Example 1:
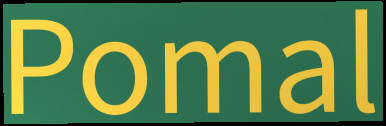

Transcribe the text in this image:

Pomal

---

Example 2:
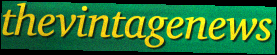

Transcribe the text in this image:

thevintagenews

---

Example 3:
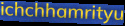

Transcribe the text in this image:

ichchhamrityu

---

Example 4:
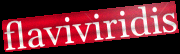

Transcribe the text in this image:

flaviviridis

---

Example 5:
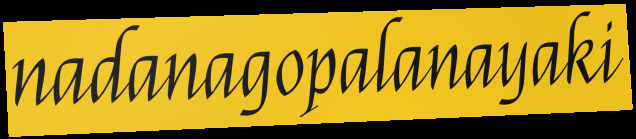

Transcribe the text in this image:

nadanagopalanayaki